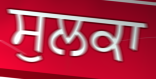
ਸੁਲਕਾ